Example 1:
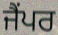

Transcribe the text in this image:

ਜੈਂਪਰ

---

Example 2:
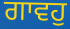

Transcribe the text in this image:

ਗਾਵਹੁ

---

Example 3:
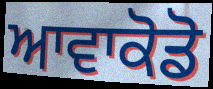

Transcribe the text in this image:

ਆਵਾਕੋਡੋ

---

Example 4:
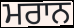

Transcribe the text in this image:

ਮਰਾਨ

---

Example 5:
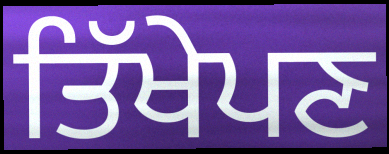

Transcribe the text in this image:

ਤਿੱਖੇਪਣ